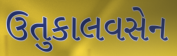
ઉતુકાલવસેન